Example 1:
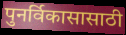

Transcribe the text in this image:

पुनर्विकासासाठी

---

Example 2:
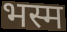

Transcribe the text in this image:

भस्म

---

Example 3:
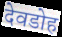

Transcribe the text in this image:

देवडोह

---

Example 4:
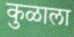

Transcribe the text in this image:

कुळाला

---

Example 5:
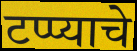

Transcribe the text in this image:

टप्प्याचे